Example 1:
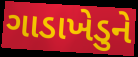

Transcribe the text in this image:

ગાડાખેડુને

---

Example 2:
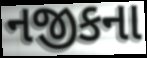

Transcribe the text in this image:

નજીકના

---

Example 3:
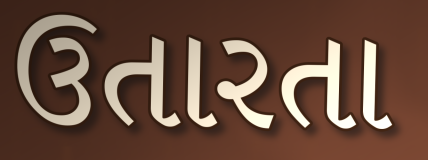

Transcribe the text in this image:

ઉતારતા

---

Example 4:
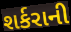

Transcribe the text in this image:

શર્કરાની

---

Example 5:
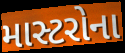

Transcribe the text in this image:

માસ્ટરોના